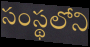
సంస్థలోని